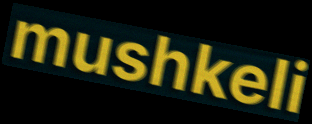
mushkeli